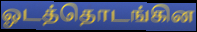
ஓடத்தொடங்கின